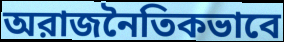
অরাজনৈতিকভাবে